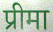
प्रीमा